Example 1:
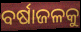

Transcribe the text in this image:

ବର୍ଷାଜଳକୁ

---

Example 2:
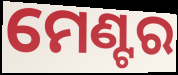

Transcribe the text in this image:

ମେଣ୍ଟର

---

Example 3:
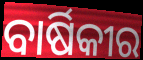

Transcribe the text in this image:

ବାର୍ଷିକୀର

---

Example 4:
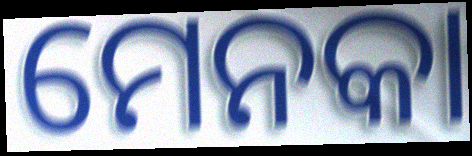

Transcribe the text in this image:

ମେନକା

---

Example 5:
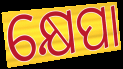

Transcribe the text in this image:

କ୍ଷେପା